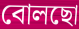
বোলছো